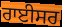
ਰਾਈਸਰ